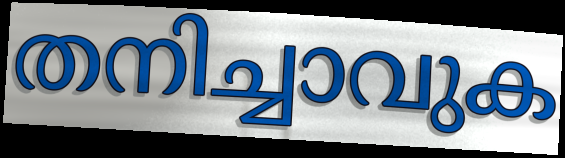
തനിച്ചാവുക